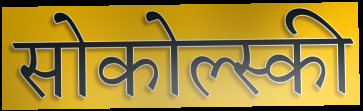
सोकोल्स्की